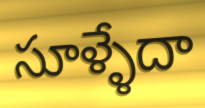
సూళ్ళేదా